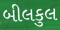
બીલકુલ